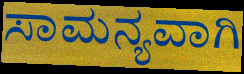
ಸಾಮನ್ಯವಾಗಿ